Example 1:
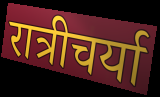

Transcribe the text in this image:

रात्रीचर्या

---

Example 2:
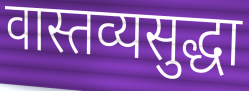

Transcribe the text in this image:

वास्तव्यसुद्धा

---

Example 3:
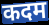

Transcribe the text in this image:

कदम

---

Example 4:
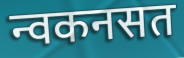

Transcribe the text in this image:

न्वकनसत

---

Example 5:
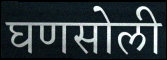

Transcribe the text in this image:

घणसोली